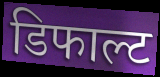
डिफाल्ट